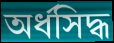
অর্ধসিদ্ধ